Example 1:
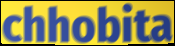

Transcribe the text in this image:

chhobita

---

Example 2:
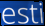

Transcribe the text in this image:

esti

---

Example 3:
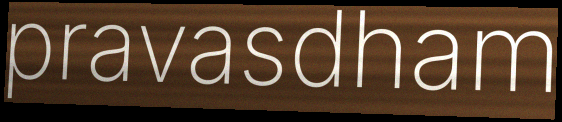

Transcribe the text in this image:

pravasdham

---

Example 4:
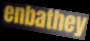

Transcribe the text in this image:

enbathey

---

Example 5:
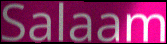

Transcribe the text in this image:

Salaam